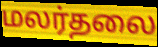
மலர்தலை